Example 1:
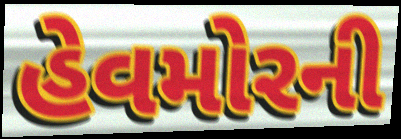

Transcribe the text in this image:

હેવમોરની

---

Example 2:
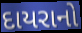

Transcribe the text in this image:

દાયરાનો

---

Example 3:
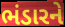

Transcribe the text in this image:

ભંડારને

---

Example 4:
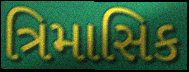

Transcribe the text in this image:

ત્રિમાસિક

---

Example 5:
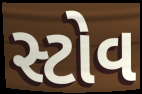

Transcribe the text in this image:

સ્ટોવ